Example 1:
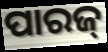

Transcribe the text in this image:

ପାରଜ୍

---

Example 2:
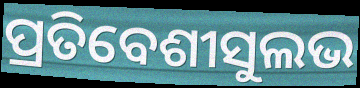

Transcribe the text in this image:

ପ୍ରତିବେଶୀସୁଲଭ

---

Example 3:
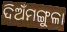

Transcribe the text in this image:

ଦିଅଁମଙ୍ଗୁଳା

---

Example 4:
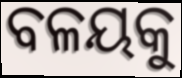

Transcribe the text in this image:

ବଳୟକୁ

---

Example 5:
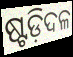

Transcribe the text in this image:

ଷ୍ଟଡ଼ିଦଳ